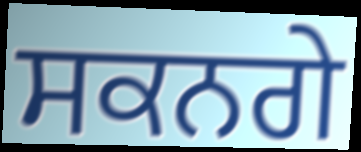
ਸਕਨਗੇ